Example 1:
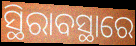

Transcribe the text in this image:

ସ୍ଥିରାବସ୍ଥାରେ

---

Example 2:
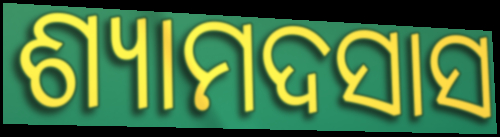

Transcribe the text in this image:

ଶ୍ୟାମଦସାସ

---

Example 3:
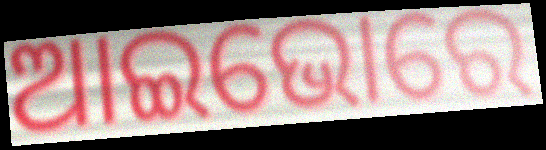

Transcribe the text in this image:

ଆଇଭୋରେ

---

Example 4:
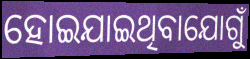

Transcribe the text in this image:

ହୋଇଯାଇଥିବାଯୋଗୁଁ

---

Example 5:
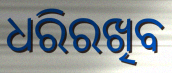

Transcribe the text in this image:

ଧରିରଖିବ